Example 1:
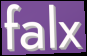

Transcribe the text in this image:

falx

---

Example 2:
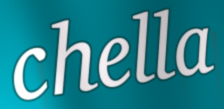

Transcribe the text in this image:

chella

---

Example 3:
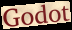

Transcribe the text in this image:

Godot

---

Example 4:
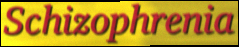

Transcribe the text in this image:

Schizophrenia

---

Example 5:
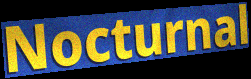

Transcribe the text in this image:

Nocturnal